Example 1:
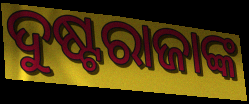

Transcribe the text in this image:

ଦୁଷ୍ଟରାଜାଙ୍କ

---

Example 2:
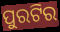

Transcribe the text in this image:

ପୁରଟିର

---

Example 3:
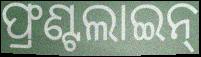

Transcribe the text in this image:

ଫ୍ରଣ୍ଟଲାଇନ୍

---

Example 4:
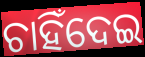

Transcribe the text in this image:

ଚାହିଁଦେଇ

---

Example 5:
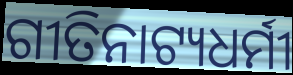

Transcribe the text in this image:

ଗୀତିନାଟ୍ୟଧର୍ମୀ